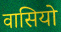
वासियो